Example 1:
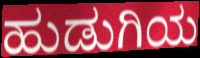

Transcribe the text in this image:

ಹುಡುಗಿಯ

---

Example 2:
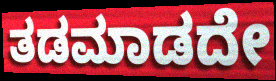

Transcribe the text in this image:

ತಡಮಾಡದೇ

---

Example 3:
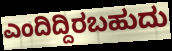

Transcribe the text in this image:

ಎಂದಿದ್ದಿರಬಹುದು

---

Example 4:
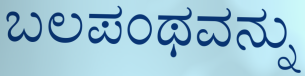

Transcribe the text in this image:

ಬಲಪಂಥವನ್ನು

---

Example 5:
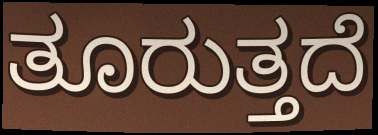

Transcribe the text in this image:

ತೂರುತ್ತದೆ